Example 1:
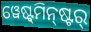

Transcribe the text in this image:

ୱେଷ୍ଟ୍‌ମିନ୍‌ଷ୍ଟର୍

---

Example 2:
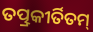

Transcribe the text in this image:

ତତ୍ପ୍ରକୀର୍ତିତମ୍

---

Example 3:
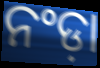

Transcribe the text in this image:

ନଂଡ଼ା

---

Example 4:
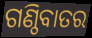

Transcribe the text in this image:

ଗଣ୍ଠିବାତର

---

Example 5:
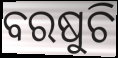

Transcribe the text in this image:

ବରଷୁଚି